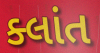
ક્લાંત